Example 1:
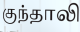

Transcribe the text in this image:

குந்தாலி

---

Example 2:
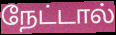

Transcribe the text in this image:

நேட்டால்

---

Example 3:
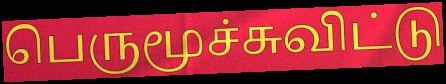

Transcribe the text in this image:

பெருமூச்சுவிட்டு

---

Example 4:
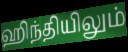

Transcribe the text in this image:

ஹிந்தியிலும்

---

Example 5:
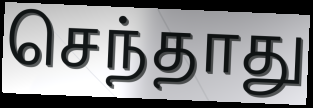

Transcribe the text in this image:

செந்தாது